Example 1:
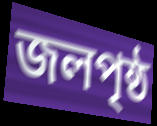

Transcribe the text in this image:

জলপৃষ্ঠ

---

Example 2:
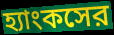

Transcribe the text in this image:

হ্যাংকসের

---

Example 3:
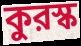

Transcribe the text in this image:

কুরস্ক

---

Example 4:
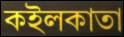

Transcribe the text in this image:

কইলকাতা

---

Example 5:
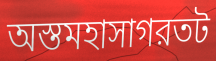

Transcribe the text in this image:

অস্তমহাসাগরতট